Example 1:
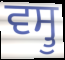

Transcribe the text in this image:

ਵਸ੍ਤੁ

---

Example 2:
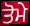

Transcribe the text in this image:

ਤੋਮੇ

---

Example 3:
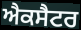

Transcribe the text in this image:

ਐਕਸੈਟਰ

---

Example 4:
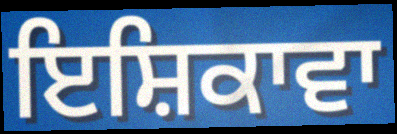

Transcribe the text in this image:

ਇਸ਼ਿਕਾਵਾ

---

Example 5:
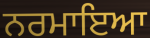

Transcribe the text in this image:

ਨਰਮਾਇਆ